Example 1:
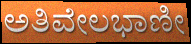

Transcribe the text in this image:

ಅತಿವೇಲಭಾಣೀ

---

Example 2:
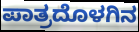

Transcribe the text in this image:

ಪಾತ್ರದೊಳಗಿನ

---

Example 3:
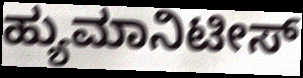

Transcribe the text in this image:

ಹ್ಯುಮಾನಿಟೀಸ್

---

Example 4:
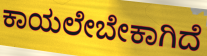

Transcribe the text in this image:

ಕಾಯಲೇಬೇಕಾಗಿದೆ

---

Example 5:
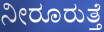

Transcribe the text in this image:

ನೀರೂರುತ್ತೆ